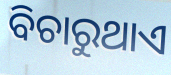
ବିଚାରୁଥାଏ